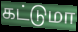
கட்டுமா